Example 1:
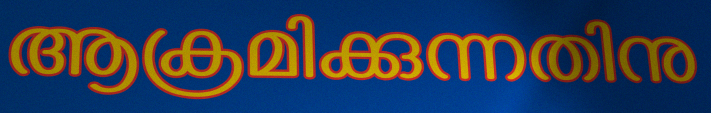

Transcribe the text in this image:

ആക്രമിക്കുന്നതിനു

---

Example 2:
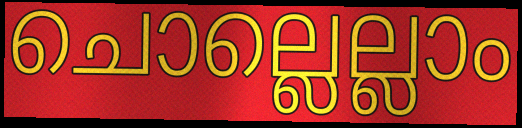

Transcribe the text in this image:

ചൊല്ലെല്ലാം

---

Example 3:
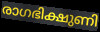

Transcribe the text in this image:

രാഗഭിക്ഷുണി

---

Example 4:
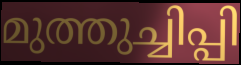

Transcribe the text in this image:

മുത്തുച്ചിപ്പി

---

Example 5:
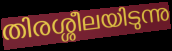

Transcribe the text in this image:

തിരശ്ശീലയിടുന്നു